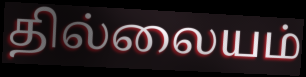
தில்லையம்